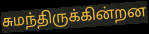
சுமந்திருக்கின்றன